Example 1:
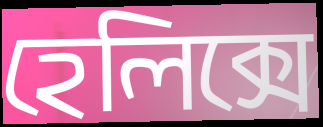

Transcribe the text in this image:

হেলিক্সে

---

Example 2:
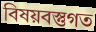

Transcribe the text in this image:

বিষয়বস্তুগত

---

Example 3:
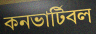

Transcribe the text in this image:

কনভার্টিবল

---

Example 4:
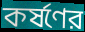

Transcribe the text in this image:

কর্ষণের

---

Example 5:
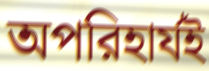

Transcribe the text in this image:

অপরিহার্যই